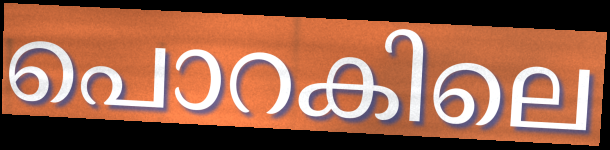
പൊറകിലെ